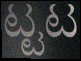
ಟ್ಟಟ